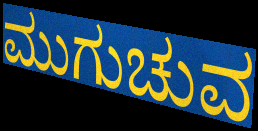
ಮುಗುಚುವ